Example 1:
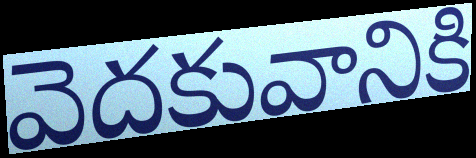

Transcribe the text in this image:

వెదకువానికి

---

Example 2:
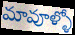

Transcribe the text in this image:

మావూళ్ళో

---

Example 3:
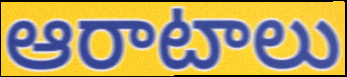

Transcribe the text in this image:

ఆరాటాలు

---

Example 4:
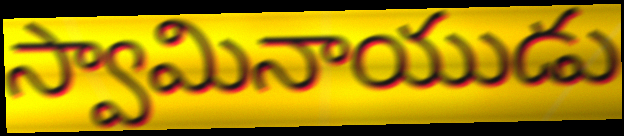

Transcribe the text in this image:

స్వామినాయుడు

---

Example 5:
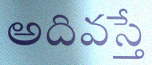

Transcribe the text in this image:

అదివస్తే